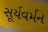
સૂર્યવર્મન